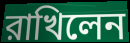
রাখিলেন